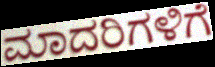
ಮಾದರಿಗಳಿಗೆ